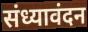
संध्यावंदन